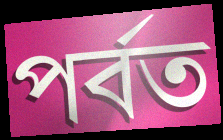
পৰ্বত